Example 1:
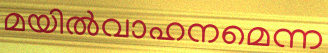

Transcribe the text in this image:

മയിൽവാഹനമെന്ന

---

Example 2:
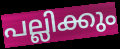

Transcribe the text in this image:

പല്ലിക്കും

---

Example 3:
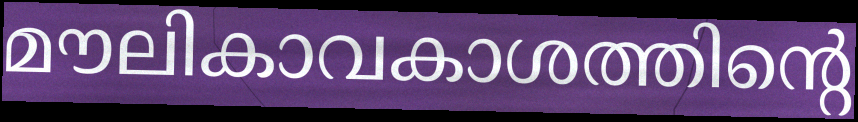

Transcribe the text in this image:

മൗലികാവകാശത്തിന്റെ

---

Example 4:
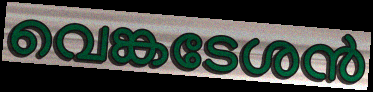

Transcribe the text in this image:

വെങ്കടേശൻ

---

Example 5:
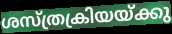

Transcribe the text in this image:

ശസ്ത്രക്രിയയ്ക്കു